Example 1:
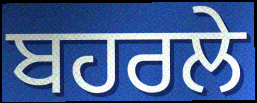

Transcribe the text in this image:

ਬਹਰਲੇ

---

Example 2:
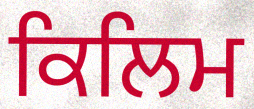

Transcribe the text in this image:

ਕਿਲਿਮ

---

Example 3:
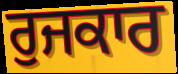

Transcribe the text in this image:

ਰੁਜਕਾਰ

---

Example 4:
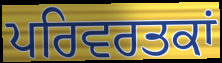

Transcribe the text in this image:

ਪਰਿਵਰਤਕਾਂ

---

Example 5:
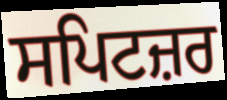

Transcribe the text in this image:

ਸਪਿਟਜ਼ਰ